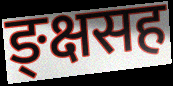
ङ्क्षसह